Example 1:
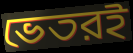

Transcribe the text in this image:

ভেতরই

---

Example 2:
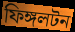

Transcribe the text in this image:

ফিঙ্গলটন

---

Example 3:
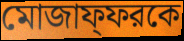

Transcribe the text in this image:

মোজাফ্ফরকে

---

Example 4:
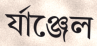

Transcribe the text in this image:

র্যাঞ্জেল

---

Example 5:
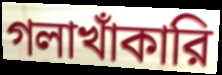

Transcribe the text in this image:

গলাখাঁকারি